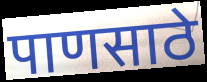
पाणसाठे